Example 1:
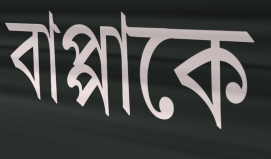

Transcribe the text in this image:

বাপ্পাকে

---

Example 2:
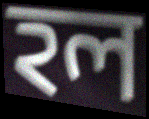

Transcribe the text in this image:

হল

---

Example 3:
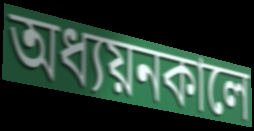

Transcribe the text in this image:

অধ্যয়নকালে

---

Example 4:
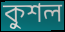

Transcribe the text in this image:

কুশল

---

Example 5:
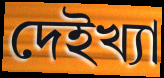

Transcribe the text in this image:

দেইখ্যা